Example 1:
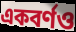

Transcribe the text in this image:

একবর্ণও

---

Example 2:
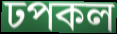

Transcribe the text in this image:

ঢপকল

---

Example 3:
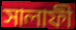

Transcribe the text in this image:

সালাফী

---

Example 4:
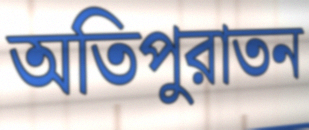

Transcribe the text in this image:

অতিপুরাতন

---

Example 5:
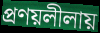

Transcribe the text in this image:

প্রণয়লীলায়